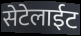
सेटेलाईट